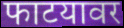
फाटयावर